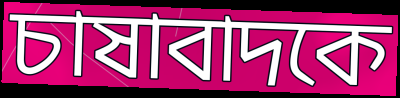
চাষাবাদকে